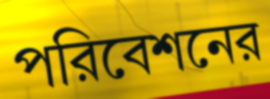
পরিবেশনের